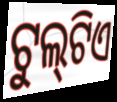
ଟୁଲ୍‍ଟିଏ